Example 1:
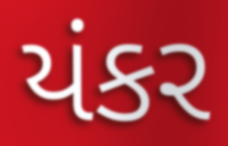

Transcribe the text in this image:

યંકર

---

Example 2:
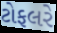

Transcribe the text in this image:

ટોફલરે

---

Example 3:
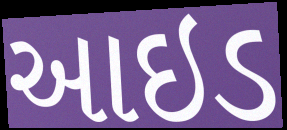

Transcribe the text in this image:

આઇડ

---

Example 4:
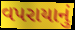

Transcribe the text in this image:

વપરાયાનું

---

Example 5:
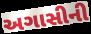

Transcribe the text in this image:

અગાસીની